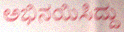
ಅಭಿನಯಿಸಿದ್ದು